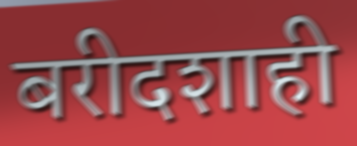
बरीदशाही